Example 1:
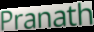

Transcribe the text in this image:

Pranath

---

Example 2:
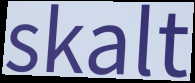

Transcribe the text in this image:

skalt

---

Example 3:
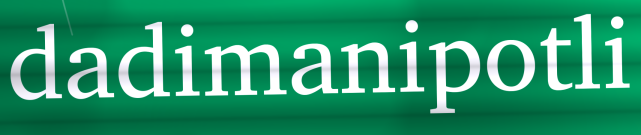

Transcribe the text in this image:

dadimanipotli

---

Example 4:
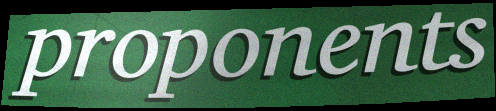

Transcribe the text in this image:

proponents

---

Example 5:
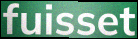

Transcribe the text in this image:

fuisset